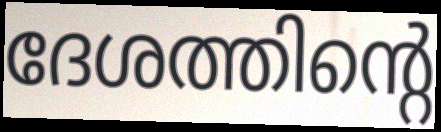
ദേശത്തിന്റെ